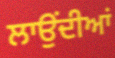
ਲਾਉੰਦੀਆਂ